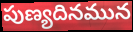
పుణ్యదినమున